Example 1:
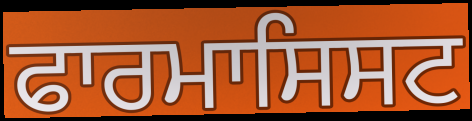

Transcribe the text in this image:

ਫਾਰਮਾਸਿਸਟ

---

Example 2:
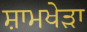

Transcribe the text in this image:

ਸ਼ਾਮਖੇੜਾ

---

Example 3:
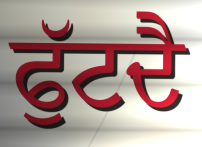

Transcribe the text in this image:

ਫੁੱਟਦੈ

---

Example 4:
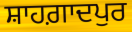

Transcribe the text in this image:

ਸ਼ਾਹਗ਼ਾਦਪੁਰ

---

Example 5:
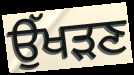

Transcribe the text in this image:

ਉੱਖੜਣ